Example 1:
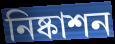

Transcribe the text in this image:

নিষ্কাশন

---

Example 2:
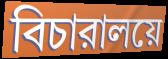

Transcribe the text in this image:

বিচারালয়ে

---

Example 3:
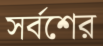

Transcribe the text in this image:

সর্বশের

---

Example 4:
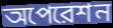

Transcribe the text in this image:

অপেরেশন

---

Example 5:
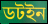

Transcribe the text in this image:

ডটইন